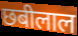
छबीलाल